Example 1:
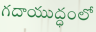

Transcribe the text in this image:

గదాయుద్ధంలో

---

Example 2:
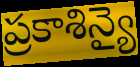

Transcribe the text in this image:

ప్రకాశిన్యై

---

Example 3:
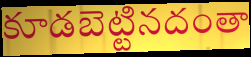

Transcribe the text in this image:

కూడబెట్టినదంతా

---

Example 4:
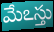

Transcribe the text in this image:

మేఽస్తు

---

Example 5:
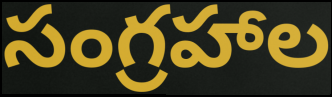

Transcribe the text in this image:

సంగ్రహాల